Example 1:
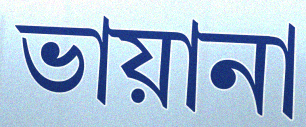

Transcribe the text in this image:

ভায়ানা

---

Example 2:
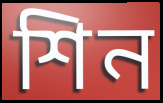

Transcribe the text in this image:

শিন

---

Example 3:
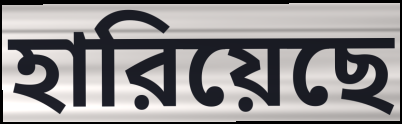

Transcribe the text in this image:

হারিয়েছে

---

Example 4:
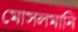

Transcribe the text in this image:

মোসলমানি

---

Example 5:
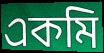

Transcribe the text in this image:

একমি